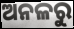
ଅନଳରୁ